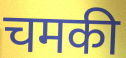
चमकी